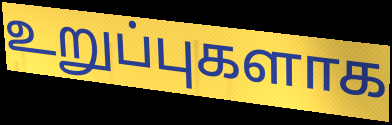
உறுப்புகளாக